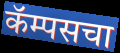
कॅम्पसचा